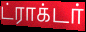
ட்ராக்டர்